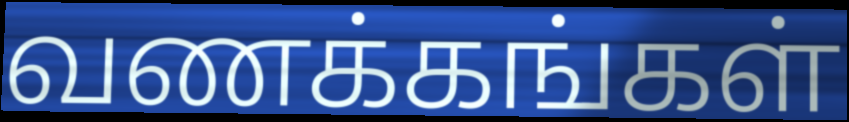
வணக்கங்கள்